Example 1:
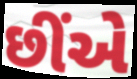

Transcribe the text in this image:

છીંએ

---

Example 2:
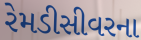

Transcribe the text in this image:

રેમડીસીવરના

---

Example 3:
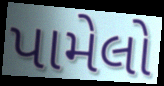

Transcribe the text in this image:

પામેલો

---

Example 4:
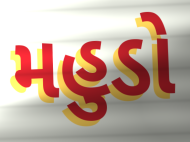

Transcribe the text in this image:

મહુડો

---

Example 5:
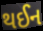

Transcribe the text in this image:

થઈન